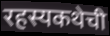
रहस्यकथेची